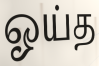
ஓய்த